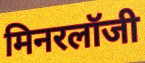
मिनरलॉजी